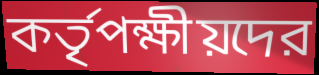
কর্তৃপক্ষীয়দের